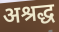
अश्रद्ध